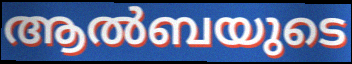
ആൽബയുടെ